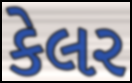
કેલર